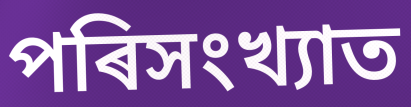
পৰিসংখ্যাত